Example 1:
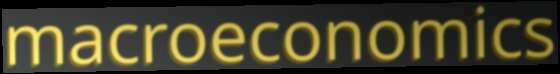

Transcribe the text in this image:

macroeconomics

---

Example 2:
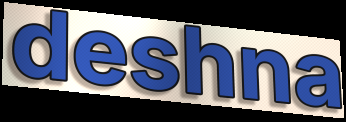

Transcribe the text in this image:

deshna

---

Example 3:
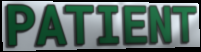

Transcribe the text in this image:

PATIENT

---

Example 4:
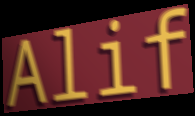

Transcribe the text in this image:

Alif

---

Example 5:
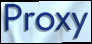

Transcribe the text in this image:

Proxy